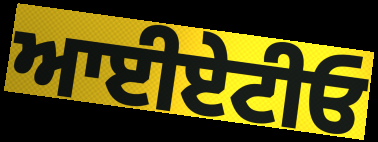
ਆਈਏਟੀਓ